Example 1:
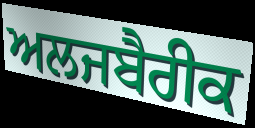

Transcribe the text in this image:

ਅਲਜਬੈਰੀਕ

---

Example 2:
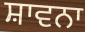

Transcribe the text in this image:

ਸ਼ਾਵਨਾ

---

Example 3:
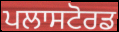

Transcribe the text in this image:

ਪਲਾਸਟੋਰਡ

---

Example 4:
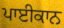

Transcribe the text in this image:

ਪਾਈਕਾਨ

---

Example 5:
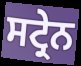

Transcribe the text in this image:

ਸਟ੍ਰੇਨ